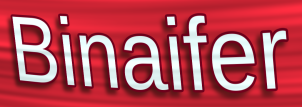
Binaifer